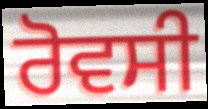
ਰੋਵਸੀ